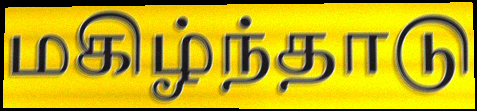
மகிழ்ந்தாடு